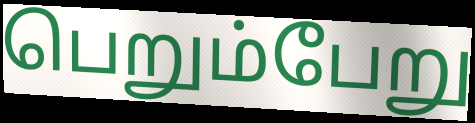
பெறும்பேறு